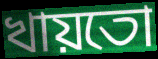
খায়তো